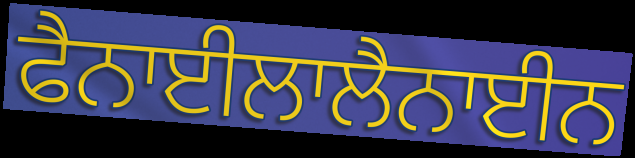
ਫੈਨਾਈਲਾਲੈਨਾਈਨ